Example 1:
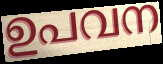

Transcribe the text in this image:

ഉപവന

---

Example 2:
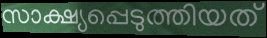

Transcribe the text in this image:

സാക്ഷ്യപ്പെടുത്തിയത്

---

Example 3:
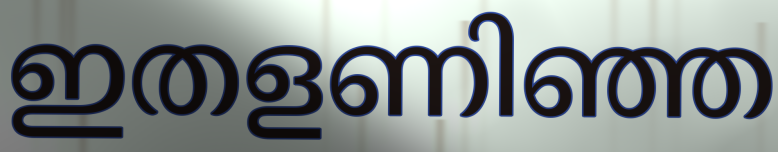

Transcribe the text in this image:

ഇതളണിഞ്ഞ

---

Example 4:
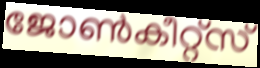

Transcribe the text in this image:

ജോൺകീറ്റ്സ്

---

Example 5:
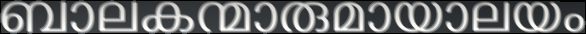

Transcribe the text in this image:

ബാലകന്മാരുമായാലയം